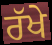
ਰੱਖੇ